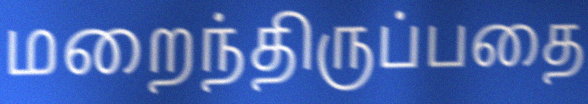
மறைந்திருப்பதை